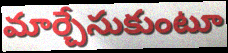
మార్చేసుకుంటూ